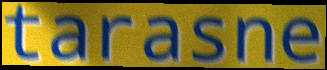
tarasne